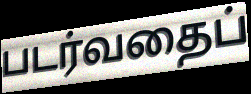
படர்வதைப்